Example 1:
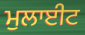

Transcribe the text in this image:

ਮੁਲਾਈਟ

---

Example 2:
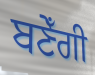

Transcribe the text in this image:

ਬਣੇਁਗੀ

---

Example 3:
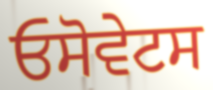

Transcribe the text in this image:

ਓਸੋਵੇਟਸ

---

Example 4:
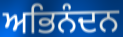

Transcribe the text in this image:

ਅਭਿਨੰਦਨ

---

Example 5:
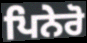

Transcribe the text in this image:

ਪਿਨੇਰੋ